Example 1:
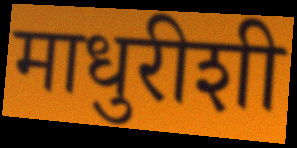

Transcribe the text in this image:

माधुरीशी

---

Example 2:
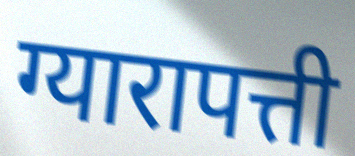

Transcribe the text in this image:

ग्यारापत्ती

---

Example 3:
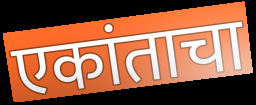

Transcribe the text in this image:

एकांताचा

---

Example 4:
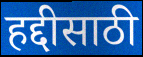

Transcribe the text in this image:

हद्दीसाठी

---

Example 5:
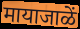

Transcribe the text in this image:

मायाजाळें